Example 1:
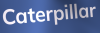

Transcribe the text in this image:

Caterpillar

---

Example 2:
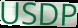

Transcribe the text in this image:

USDP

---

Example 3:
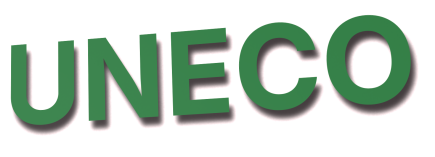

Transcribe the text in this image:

UNECO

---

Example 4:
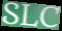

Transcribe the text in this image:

SLC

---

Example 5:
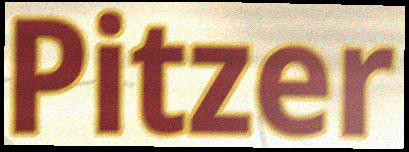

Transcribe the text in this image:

Pitzer